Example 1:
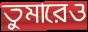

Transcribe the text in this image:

তুমারেও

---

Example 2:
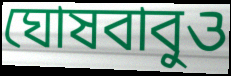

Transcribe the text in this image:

ঘোষবাবুও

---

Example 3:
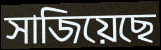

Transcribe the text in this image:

সাজিয়েছে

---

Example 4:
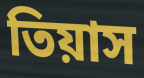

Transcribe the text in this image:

তিয়াস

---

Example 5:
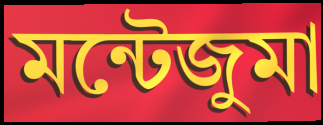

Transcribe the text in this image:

মন্টেজুমা